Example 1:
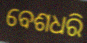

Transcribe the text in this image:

ବେଶଧରି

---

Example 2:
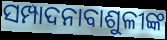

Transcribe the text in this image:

ସମ୍ପାଦନାବାଶୁଳୀଙ୍କ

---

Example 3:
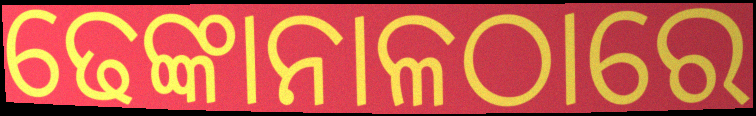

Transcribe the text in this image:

ଢେଙ୍କାନାଳଠାରେ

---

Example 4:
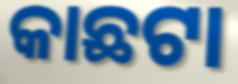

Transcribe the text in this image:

କାଛଟା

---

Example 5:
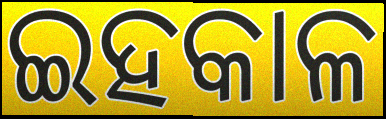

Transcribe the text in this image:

ଇହକାଳ